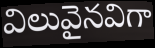
విలువైనవిగా